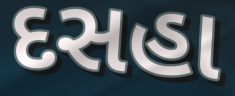
દસહા